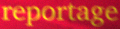
reportage